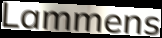
Lammens